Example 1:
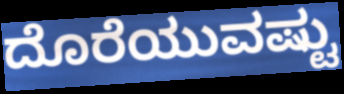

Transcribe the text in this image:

ದೊರೆಯುವಷ್ಟು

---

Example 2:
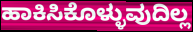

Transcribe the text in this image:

ಹಾಕಿಸಿಕೊಳ್ಳುವುದಿಲ್ಲ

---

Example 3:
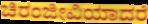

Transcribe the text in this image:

ಚಿರಂಜೀವಿಯಾದರೆ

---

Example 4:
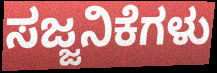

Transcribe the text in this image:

ಸಜ್ಜನಿಕೆಗಳು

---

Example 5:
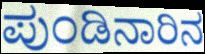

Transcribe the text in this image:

ಪುಂಡಿನಾರಿನ